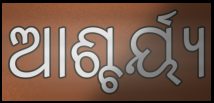
ଆଶ୍ଚର୍ୟ୍ଯ